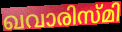
ഖവാരിസ്മി